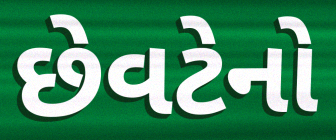
છેવટેનો